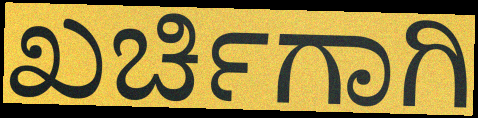
ಖರ್ಚಿಗಾಗಿ